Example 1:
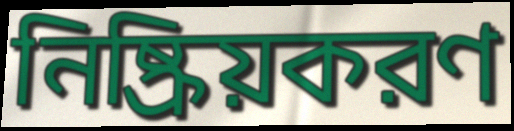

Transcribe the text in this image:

নিষ্ক্রিয়করণ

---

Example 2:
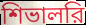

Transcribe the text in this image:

শিভালরি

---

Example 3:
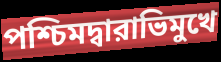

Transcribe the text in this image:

পশ্চিমদ্বারাভিমুখে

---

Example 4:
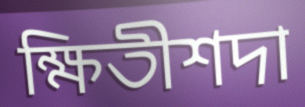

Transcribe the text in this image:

ক্ষিতীশদা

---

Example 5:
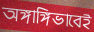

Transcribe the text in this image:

অঙ্গাঙ্গিভাবেই